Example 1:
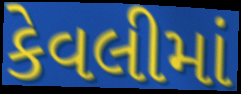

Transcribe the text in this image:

કેવલીમાં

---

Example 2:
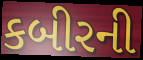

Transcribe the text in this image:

કબીરની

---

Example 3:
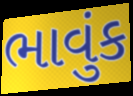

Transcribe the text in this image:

ભાવુંક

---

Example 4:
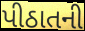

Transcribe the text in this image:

પીઠાતની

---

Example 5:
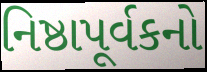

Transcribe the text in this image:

નિષ્ઠાપૂર્વકનો